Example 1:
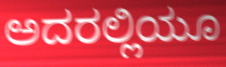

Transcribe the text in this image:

ಅದರಲ್ಲಿಯೂ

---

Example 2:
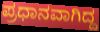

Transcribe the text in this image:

ಪ್ರಧಾನವಾಗಿದ್ದ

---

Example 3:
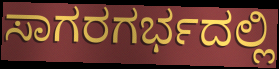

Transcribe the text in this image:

ಸಾಗರಗರ್ಭದಲ್ಲಿ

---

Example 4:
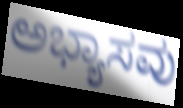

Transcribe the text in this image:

ಅಭ್ಯಾಸವು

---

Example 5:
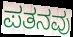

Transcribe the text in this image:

ಪತನವು